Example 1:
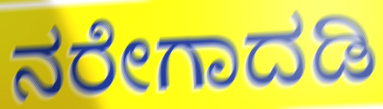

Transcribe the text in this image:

ನರೇಗಾದಡಿ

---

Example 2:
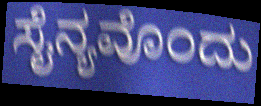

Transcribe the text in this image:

ಸೈನ್ಯವೊಂದು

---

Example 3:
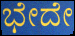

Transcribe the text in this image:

ಭೇದೇ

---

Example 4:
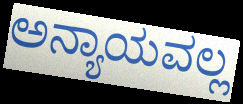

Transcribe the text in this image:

ಅನ್ಯಾಯವಲ್ಲ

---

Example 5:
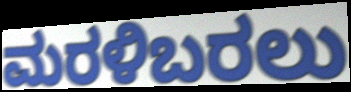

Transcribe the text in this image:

ಮರಳಿಬರಲು